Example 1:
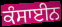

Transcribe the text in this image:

ਕੰਸਾਈਨ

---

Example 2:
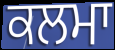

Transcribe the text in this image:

ਕਲਮਾ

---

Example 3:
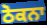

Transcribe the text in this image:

ਠੋਕਨਾ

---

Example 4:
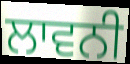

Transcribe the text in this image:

ਲਾਵਨੀ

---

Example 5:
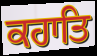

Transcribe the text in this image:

ਕਹਾਤਿ